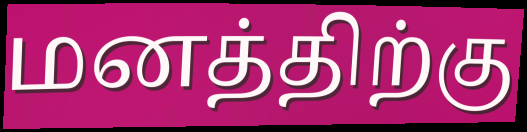
மனத்திற்கு